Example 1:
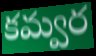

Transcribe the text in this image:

కమ్వర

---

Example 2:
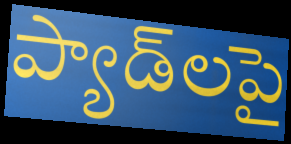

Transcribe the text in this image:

ప్యాడ్‌లపై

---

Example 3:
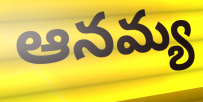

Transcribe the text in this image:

ఆనమ్య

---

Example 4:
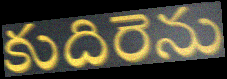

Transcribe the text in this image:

కుదిరెను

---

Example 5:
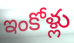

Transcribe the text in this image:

ఇంకోళ్లు